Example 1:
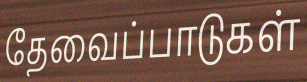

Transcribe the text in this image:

தேவைப்பாடுகள்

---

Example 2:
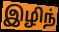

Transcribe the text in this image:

இழிந்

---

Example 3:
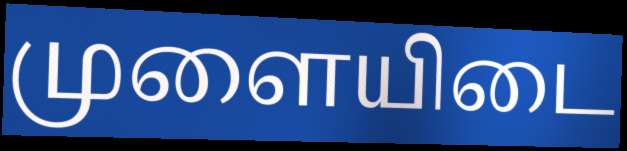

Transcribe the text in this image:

முளையிடை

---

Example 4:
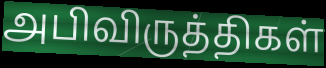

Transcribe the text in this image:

அபிவிருத்திகள்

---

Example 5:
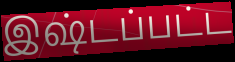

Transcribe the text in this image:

இஷ்டப்பட்ட